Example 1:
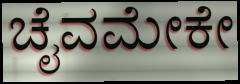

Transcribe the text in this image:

ಚೈವಮೇಕೇ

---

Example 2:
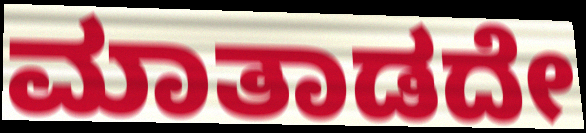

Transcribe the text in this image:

ಮಾತಾಡದೇ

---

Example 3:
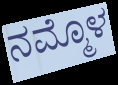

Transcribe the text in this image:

ನಮ್ಮೊಳ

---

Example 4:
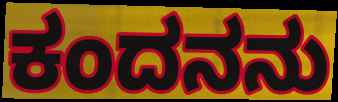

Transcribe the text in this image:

ಕಂದನನು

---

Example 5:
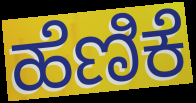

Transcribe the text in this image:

ಹೆಣಿಕೆ